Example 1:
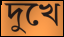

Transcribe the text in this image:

দুখে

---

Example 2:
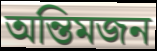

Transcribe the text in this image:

অন্তিমজন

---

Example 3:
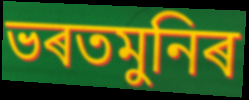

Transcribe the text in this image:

ভৰতমুনিৰ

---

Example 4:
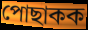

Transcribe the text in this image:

পোছাকক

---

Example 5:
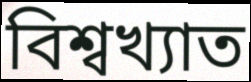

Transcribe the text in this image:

বিশ্বখ্যাত